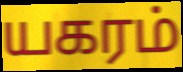
யகரம்